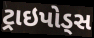
ટ્રાઇપોડ્સ